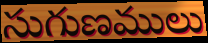
సుగుణములు